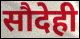
सौदेही